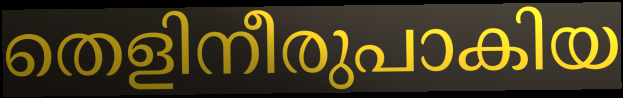
തെളിനീരുപാകിയ